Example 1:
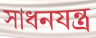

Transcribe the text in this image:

সাধনযন্ত্র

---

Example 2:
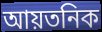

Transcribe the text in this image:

আয়তনিক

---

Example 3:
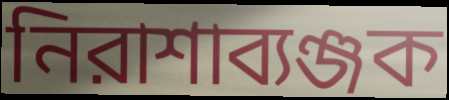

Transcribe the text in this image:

নিরাশাব্যঞ্জক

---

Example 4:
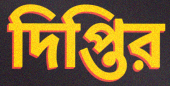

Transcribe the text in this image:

দিপ্তির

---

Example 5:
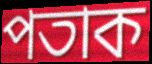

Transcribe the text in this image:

পতাক